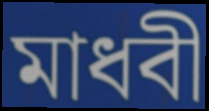
মাধবী